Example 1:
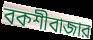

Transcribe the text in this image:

বকশীবাজার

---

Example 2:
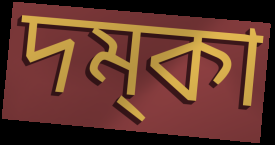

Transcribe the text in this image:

দম্‌কা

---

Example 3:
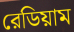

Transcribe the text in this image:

রেডিয়াম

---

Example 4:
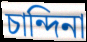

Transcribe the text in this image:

চান্দিনা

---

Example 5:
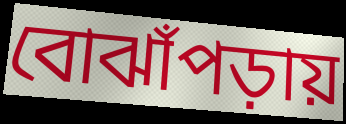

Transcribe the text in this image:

বোঝাঁপড়ায়